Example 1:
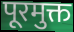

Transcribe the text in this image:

पूरमुक्त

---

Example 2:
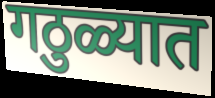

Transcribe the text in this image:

गठुळ्यात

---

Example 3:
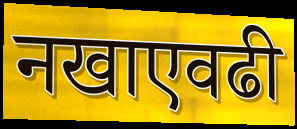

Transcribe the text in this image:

नखाएवढी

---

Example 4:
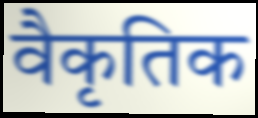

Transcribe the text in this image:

वैकृतिक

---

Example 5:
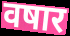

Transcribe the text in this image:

वषार